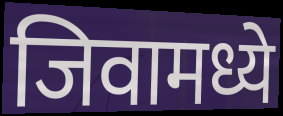
जिवामध्ये